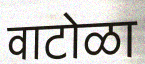
वाटोळा